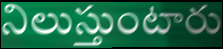
నిలుస్తుంటారు